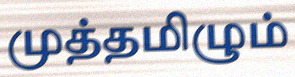
முத்தமிழும்